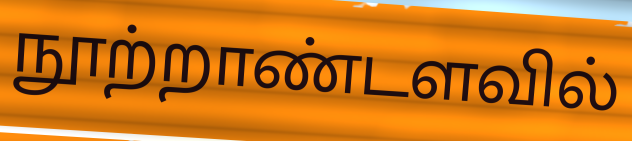
நூற்றாண்டளவில்